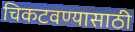
चिकटवण्यासाठी